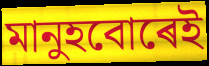
মানুহবোৰেই